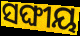
ସଙ୍ଘୀୟ